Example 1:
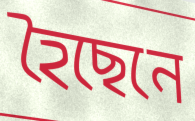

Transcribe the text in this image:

হৈছেনে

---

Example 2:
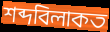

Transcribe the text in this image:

শব্দবিলাকত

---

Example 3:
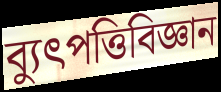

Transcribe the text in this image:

ব্যুৎপত্তিবিজ্ঞান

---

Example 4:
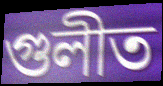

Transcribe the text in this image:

গুলীত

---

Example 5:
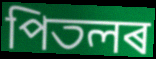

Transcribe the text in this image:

পিতলৰ